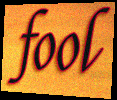
fool